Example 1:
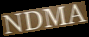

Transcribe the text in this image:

NDMA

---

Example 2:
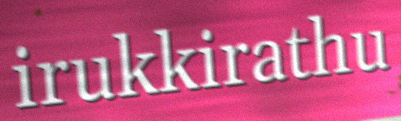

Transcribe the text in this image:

irukkirathu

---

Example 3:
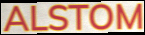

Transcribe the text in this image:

ALSTOM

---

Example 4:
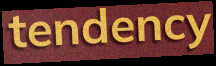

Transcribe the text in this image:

tendency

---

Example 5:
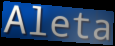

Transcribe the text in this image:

Aleta